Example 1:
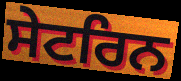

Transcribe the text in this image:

ਸੇਟਰਿਨ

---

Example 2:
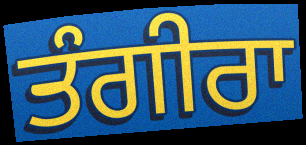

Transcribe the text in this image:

ਤੰਗੀਰਾ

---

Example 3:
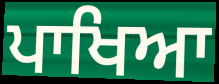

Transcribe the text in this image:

ਪਾਖਿਆ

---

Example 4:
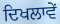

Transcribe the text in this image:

ਦਿਖਲਾਵੇਂ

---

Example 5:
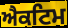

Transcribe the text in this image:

ਐਕਟਿਮ